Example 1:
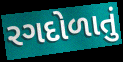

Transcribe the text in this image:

રગદોળાતું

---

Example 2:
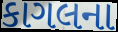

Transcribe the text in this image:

કાગલના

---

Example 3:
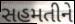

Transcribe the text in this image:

સહમતીને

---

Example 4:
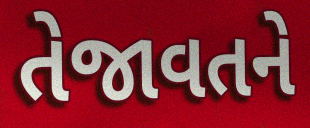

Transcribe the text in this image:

તેજાવતને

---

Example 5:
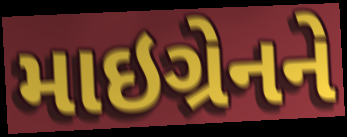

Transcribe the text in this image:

માઇગ્રેનને